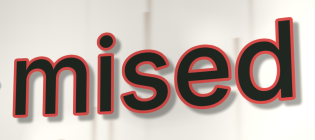
mised